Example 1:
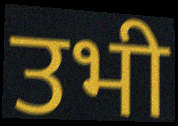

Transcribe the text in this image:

उभी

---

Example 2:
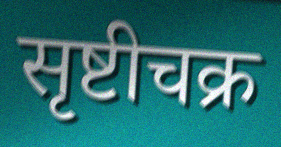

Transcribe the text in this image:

सृष्टीचक्र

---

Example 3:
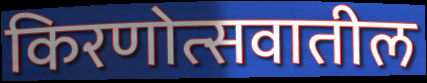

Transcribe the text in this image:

किरणोत्सवातील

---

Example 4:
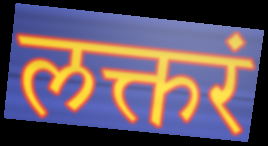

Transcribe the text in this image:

लक्तरं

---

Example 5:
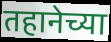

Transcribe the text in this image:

तहानेच्या